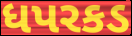
ધપરકડ